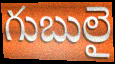
గుబులై